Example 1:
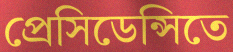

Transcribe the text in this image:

প্রেসিডেন্সিতে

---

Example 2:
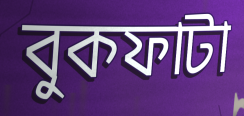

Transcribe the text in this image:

বুকফাটা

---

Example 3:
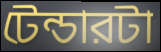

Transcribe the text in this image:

টেন্ডারটা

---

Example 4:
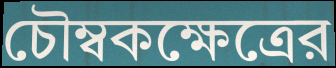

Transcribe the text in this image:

চৌম্বকক্ষেত্রের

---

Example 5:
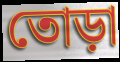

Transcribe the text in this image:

তোড়া